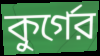
কুর্গের